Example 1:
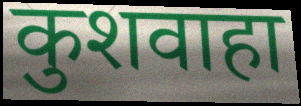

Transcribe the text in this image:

कुशवाहा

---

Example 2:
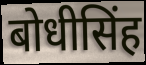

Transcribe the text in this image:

बोधीसिंह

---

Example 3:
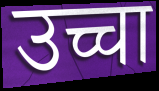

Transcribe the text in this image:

उच्चा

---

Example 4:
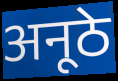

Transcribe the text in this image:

अनूठे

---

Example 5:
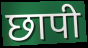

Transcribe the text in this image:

छापी